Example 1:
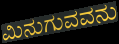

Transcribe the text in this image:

ಮಿನುಗುವವನು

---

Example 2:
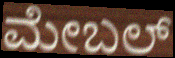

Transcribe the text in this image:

ಮೇಬಲ್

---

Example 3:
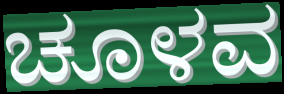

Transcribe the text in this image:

ಚೂಳವ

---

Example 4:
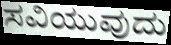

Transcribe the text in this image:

ಸವಿಯುವುದು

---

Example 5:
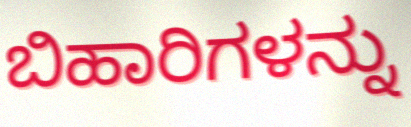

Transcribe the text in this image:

ಬಿಹಾರಿಗಳನ್ನು